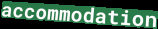
accommodation